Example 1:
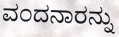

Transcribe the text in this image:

ವಂದನಾರನ್ನು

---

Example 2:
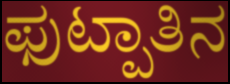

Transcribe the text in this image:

ಫುಟ್ಪಾತಿನ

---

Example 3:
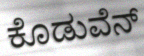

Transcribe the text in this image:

ಕೊಡುವೆನ್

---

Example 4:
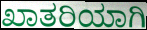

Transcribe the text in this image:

ಖಾತರಿಯಾಗಿ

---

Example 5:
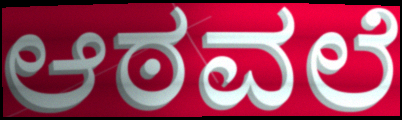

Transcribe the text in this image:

ಆಠವಲೆ